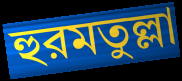
হুরমতুল্লা